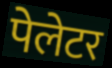
पेलेटर